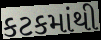
કટકમાંથી